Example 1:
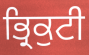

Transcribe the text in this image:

ਭ੍ਰਿਕੁਟੀ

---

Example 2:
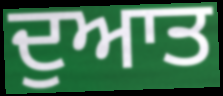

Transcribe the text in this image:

ਦੁਆਤ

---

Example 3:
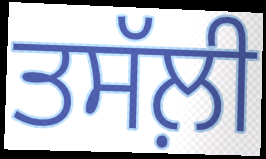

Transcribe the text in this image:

ਤਸੱਲ਼ੀ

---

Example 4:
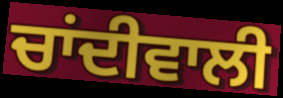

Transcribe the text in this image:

ਚਾਂਦੀਵਾਲੀ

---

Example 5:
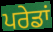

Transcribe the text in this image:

ਪਰੇਡਾਂ